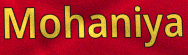
Mohaniya